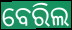
ବେରିଲ